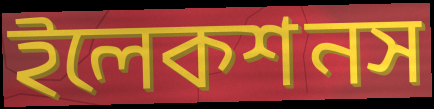
ইলেকশনস